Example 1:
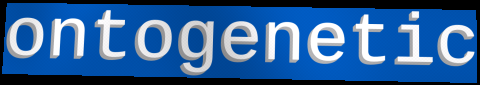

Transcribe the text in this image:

ontogenetic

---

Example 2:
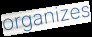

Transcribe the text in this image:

organizes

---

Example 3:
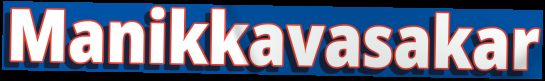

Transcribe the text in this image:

Manikkavasakar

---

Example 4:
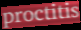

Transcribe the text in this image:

proctitis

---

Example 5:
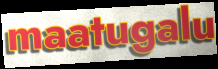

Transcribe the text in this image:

maatugalu